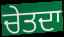
ਚੇਤਦਾ